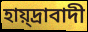
হায়্দ্রাবাদী